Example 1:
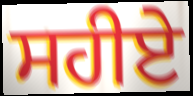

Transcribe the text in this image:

ਸਹੀਏ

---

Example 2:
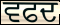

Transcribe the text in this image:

ਵਫਦ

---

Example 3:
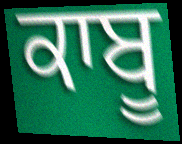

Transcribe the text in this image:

ਕਾਬੂ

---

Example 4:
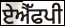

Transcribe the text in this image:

ਏਐੱਫਪੀ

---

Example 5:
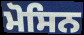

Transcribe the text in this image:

ਮੋਸਿਨ